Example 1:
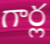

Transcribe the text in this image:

గార్ల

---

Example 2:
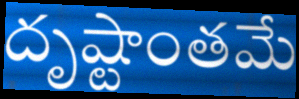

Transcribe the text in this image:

దృష్టాంతమే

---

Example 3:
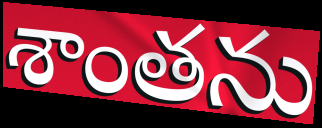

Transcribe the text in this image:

శాంతను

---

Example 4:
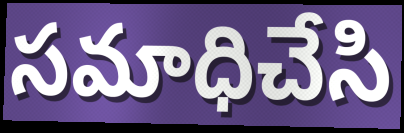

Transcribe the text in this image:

సమాధిచేసి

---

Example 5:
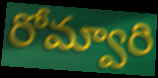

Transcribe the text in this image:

రోమ్వారి